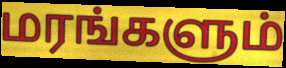
மரங்களும்